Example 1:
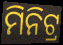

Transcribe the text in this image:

ମିନିଟ୍ର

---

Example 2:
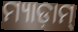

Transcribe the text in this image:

ମ୍ୟାଡ଼ାମ୍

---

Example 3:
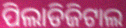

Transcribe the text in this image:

ପିଲାଡିଜିଟାଲ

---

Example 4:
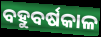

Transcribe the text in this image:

ବହୁବର୍ଷକାଳ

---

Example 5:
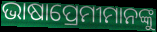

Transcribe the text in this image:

ଭାଷାପ୍ରେମୀମାନଙ୍କୁ